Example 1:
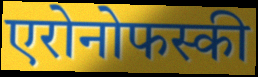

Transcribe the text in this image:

एरोनोफस्की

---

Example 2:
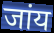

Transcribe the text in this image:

जांय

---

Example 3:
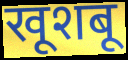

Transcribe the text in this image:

खूशबू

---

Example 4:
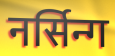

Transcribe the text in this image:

नर्सिन्ग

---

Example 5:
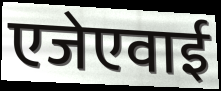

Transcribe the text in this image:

एजेएवाई